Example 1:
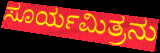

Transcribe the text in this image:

ಸೂರ್ಯಮಿತ್ರನು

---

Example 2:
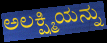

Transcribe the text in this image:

ಅಲಕ್ಷ್ಮಿಯನ್ನು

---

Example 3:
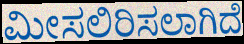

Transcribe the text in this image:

ಮೀಸಲಿರಿಸಲಾಗಿದೆ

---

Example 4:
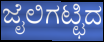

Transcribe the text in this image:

ಜೈಲಿಗಟ್ಟಿದ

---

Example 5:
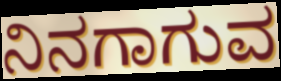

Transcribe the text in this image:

ನಿನಗಾಗುವ